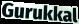
Gurukkal